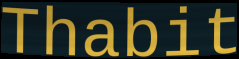
Thabit